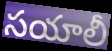
సయాలీ